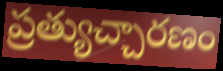
ప్రత్యుచ్చారణం